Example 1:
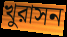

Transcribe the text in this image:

খুরাসন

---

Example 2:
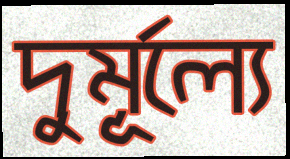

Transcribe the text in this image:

দুর্মূল্যে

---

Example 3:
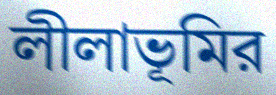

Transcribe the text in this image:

লীলাভূমির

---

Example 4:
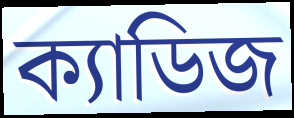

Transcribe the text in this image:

ক্যাডিজ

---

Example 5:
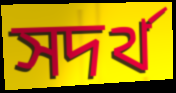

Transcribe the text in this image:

সদর্থ